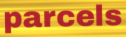
parcels